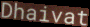
Dhaivat